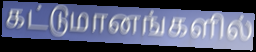
கட்டுமானங்களில்